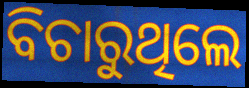
ବିଚାରୁଥିଲେ